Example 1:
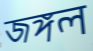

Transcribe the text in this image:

জঙ্গল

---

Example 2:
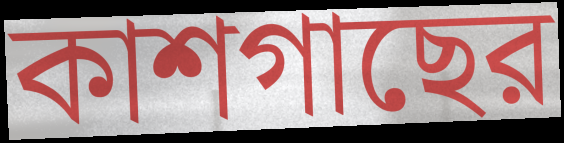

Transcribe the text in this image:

কাশগাছের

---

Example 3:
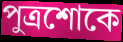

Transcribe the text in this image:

পুত্রশোকে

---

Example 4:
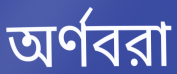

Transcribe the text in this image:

অর্ণবরা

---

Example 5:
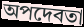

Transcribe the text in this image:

অপদেবতা